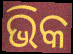
ଭିକ